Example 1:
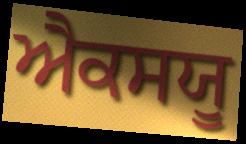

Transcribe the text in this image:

ਐਕਸਯੂ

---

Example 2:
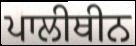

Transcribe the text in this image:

ਪਾਲੀਥੀਨ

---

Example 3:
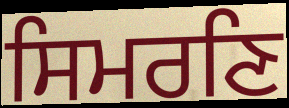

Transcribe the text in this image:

ਸਿਮਰਣਿ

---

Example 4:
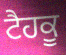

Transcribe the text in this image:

ਟੈਹਕੂ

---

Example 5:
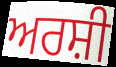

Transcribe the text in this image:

ਅਰਸ਼ੀ